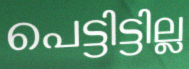
പെട്ടിട്ടില്ല